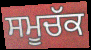
ਸਮੂਚੱਕ